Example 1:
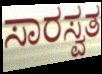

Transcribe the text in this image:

ಸಾರಸ್ವತ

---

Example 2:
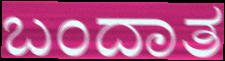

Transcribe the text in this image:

ಬಂದಾತ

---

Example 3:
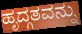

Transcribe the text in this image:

ಹೃದ್ಗತವನ್ನು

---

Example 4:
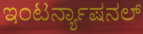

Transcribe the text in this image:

ಇಂಟರ್ನ್ಯಾಷನಲ್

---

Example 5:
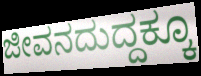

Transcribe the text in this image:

ಜೀವನದುದ್ದಕ್ಕೂ